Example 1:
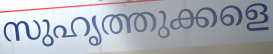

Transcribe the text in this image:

സുഹൃത്തുക്കളെ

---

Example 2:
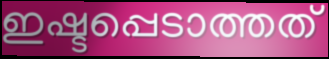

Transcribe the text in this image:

ഇഷ്ടപ്പെടാത്തത്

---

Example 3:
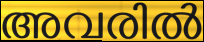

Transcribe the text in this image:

അവരിൽ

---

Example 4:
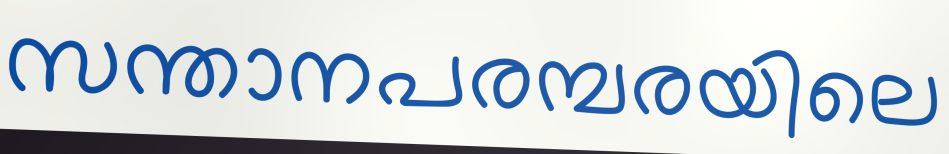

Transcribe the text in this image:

സന്താനപരമ്പരയിലെ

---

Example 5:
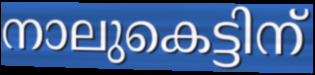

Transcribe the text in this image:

നാലുകെട്ടിന്